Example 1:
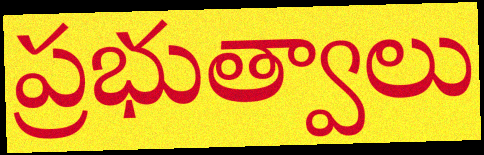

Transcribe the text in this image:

ప్రభుత్వాలు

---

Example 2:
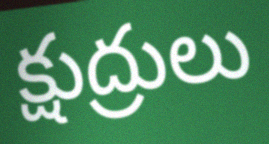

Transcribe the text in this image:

క్షుద్రులు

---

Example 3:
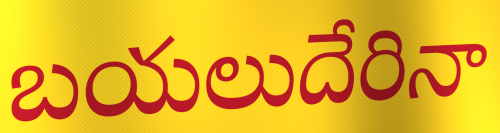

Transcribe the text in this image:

బయలుదేరినా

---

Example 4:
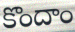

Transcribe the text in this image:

కొందాం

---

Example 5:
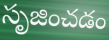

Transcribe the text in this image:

సృజించడం